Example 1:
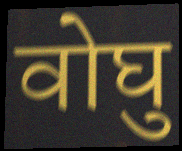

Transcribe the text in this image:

वोघु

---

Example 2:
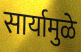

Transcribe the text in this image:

सार्यामुळे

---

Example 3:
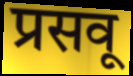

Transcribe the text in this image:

प्रसवू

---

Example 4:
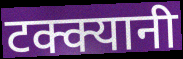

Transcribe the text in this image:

टक्क्यानी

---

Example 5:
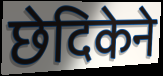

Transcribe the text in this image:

छेदिकेने